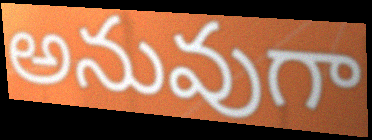
అనువుగా